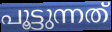
പൂട്ടുന്നത്